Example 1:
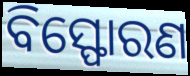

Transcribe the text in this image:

ବିସ୍ଫୋରଣ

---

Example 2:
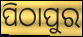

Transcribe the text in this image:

ପିଠାପୁର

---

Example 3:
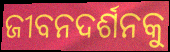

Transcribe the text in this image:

ଜୀବନଦର୍ଶନକୁ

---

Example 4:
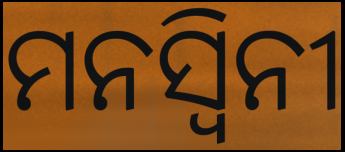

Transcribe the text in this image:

ମନସ୍ୱିନୀ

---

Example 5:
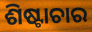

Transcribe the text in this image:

ଶିଷ୍ଟାଚାର